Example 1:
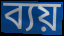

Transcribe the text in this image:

ব্যয়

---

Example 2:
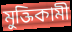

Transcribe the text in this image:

মুক্তিকামী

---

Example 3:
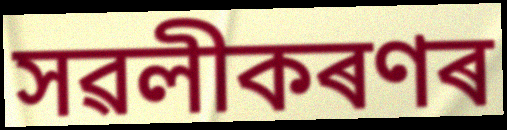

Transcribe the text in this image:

সৱলীকৰণৰ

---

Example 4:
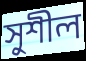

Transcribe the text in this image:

সুশীল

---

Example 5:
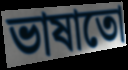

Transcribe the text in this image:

ভাষাতো